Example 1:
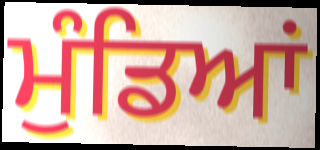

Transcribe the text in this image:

ਮੁੰਡਿਆਂ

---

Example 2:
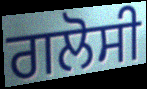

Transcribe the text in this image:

ਗਲੋਸੀ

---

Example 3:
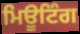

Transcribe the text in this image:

ਮਿਊਟਿੰਗ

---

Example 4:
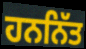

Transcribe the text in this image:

ਹਨਨਿੱਤ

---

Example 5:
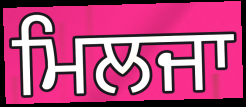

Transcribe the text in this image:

ਮਿਲਜਾ